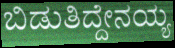
ಬಿಡುತಿದ್ದೇನಯ್ಯ